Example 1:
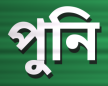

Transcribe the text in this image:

পুনি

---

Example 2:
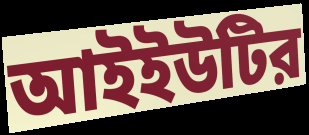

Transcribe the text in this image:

আইইউটির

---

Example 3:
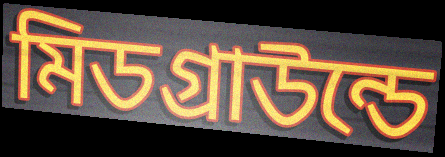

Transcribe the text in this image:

মিডগ্রাউন্ডে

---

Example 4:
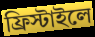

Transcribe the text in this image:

ফ্রিস্টাইলে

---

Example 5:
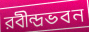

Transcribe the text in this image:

রবীন্দ্রভবন